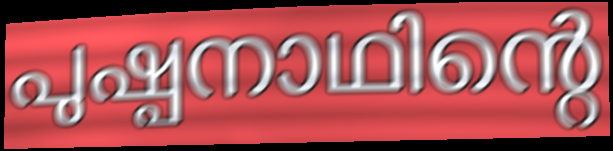
പുഷ്പനാഥിന്റെ